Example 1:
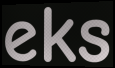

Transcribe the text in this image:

eks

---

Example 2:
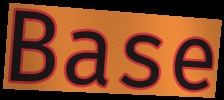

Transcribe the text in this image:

Base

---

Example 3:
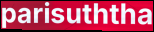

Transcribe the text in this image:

parisuththa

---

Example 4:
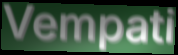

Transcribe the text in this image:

Vempati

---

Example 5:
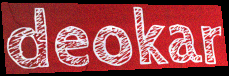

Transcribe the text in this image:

deokar